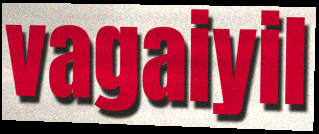
vagaiyil